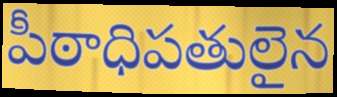
పీఠాధిపతులైన